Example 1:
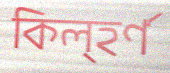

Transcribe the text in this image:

কিল্‌হর্ণ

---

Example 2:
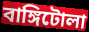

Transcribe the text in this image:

বাঙ্গিটোলা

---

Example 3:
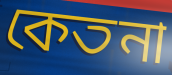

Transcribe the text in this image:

কেতনা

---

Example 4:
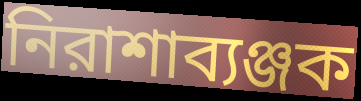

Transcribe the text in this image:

নিরাশাব্যঞ্জক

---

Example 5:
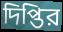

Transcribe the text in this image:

দিপ্তির